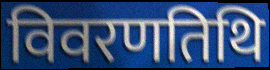
विवरणतिथि